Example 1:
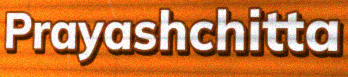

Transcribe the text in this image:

Prayashchitta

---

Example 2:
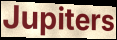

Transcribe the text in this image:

Jupiters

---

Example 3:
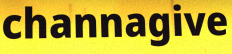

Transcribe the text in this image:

channagive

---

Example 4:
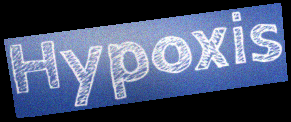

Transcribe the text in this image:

Hypoxis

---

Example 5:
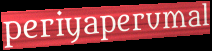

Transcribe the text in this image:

periyaperumal